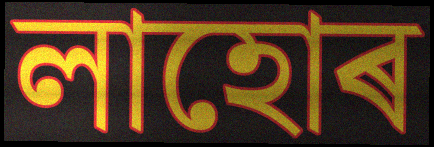
লাহোৰ